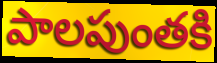
పాలపుంతకి